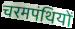
चरमपंथियों